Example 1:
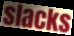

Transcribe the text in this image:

slacks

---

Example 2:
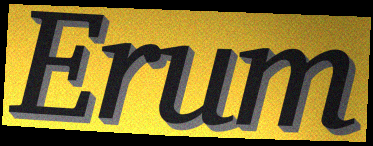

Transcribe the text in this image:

Erum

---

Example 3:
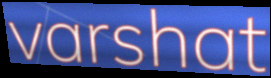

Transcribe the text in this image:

varshat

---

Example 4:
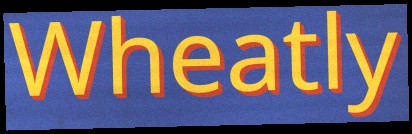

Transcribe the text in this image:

Wheatly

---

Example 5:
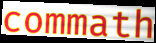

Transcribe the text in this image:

commath